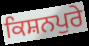
ਕਿਸ਼ਨਪੁਰੇ